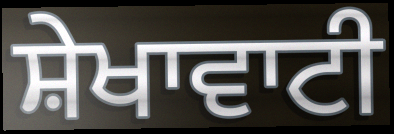
ਸ਼ੇਖਾਵਾਟੀ